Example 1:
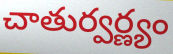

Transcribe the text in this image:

చాతుర్వర్ణ్యం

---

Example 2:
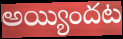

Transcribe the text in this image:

అయ్యిందట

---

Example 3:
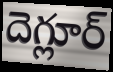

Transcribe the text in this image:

దెగ్లూర్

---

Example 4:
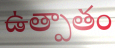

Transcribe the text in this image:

ఉత్పాతం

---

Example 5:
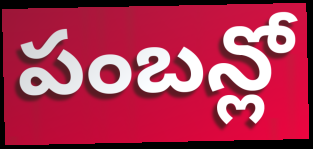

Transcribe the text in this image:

పంబన్లో